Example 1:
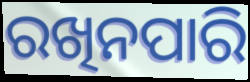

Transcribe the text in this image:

ରଖିନପାରି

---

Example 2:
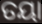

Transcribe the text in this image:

ତୟା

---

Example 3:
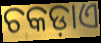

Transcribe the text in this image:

ଚକଡ଼ାଏ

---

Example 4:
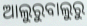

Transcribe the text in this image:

ଆଲୁରୁବାଲୁରୁ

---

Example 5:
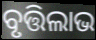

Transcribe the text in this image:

ବୃତ୍ତିଲାଭ